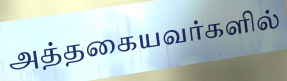
அத்தகையவர்களில்